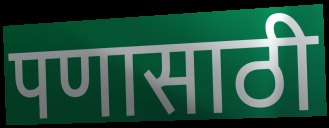
पणासाठी